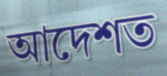
আদেশত